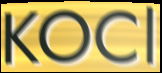
KOCl